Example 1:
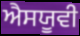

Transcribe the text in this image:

ਐਸਯੂਵੀ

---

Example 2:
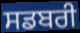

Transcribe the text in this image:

ਸਡਬਰੀ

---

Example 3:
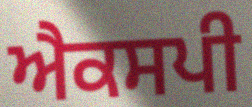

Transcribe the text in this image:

ਐਕਸਪੀ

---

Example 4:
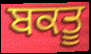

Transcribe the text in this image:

ਬਕਤੂ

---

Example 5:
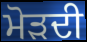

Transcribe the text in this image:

ਮੋੜਦੀ